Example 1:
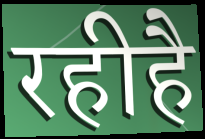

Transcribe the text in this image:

रहीहै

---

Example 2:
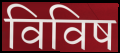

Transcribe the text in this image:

विविष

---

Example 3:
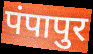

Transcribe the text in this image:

पंपापुर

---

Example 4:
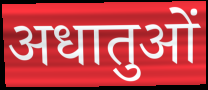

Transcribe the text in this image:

अधातुओं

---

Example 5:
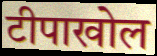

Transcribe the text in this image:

टीपाखोल